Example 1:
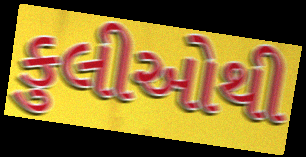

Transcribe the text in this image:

કુલીઓથી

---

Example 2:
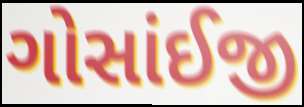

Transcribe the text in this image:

ગોસાંઈજી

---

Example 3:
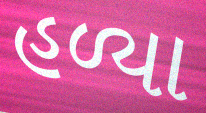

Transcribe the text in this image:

હળ્યા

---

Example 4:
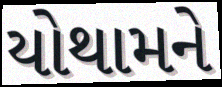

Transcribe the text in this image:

યોથામને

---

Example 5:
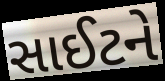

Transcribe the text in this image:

સાઈટને